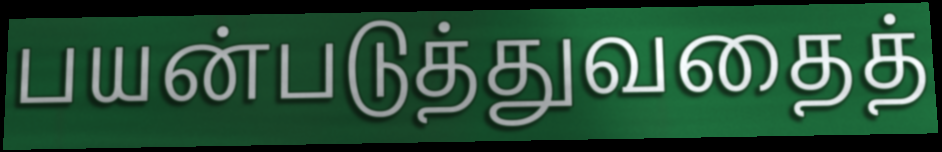
பயன்படுத்துவதைத்